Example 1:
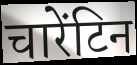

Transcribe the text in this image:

चारेंटिन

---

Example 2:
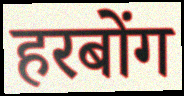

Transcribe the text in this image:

हरबोंग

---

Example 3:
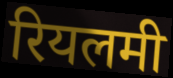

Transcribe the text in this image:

रियलमी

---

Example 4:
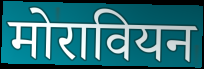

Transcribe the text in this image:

मोरावियन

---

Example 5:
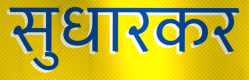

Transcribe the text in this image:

सुधारकर